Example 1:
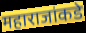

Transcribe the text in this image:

महाराजांकडे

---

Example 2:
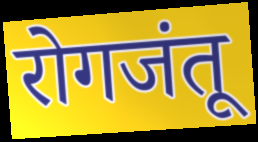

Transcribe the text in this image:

रोगजंतू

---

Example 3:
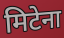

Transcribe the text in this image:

मिटेना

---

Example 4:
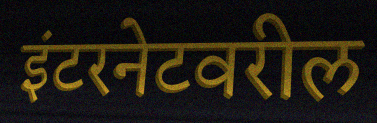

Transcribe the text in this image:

इंटरनेटवरील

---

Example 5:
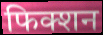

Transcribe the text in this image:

फिक्‍शन